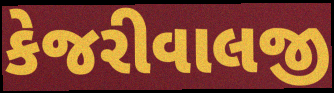
કેજરીવાલજી